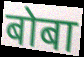
बोबा